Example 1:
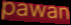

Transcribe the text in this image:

pawan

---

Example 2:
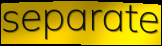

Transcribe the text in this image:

separate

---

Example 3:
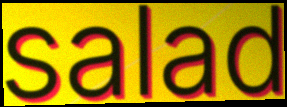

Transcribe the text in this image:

salad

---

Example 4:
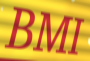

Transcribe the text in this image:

BMI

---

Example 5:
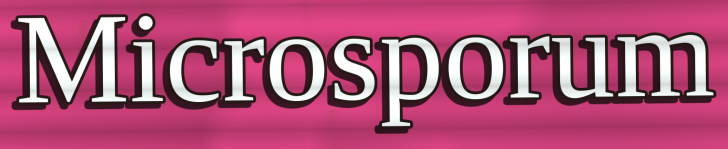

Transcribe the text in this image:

Microsporum